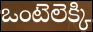
ఒంటెలెక్కి